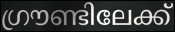
ഗ്രൗണ്ടിലേക്ക്